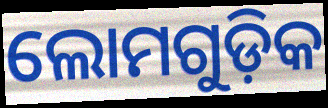
ଲୋମଗୁଡ଼ିକ